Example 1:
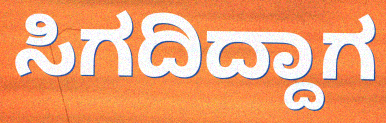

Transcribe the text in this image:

ಸಿಗದಿದ್ದಾಗ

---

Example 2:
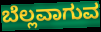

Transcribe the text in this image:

ಬೆಲ್ಲವಾಗುವ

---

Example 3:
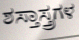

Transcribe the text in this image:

ಶಸ್ತಾಸ್ತ್ರಗಳ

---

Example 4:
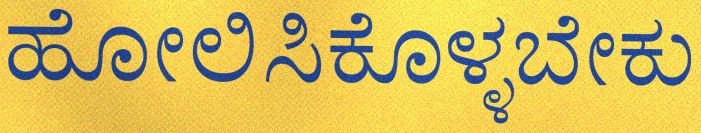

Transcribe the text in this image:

ಹೋಲಿಸಿಕೊಳ್ಳಬೇಕು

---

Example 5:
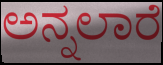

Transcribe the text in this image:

ಅನ್ನಲಾರೆ